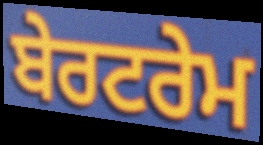
ਬੇਰਟਰੇਮ